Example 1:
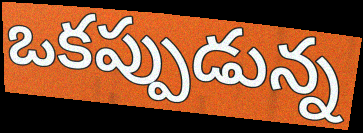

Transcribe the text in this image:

ఒకప్పుడున్న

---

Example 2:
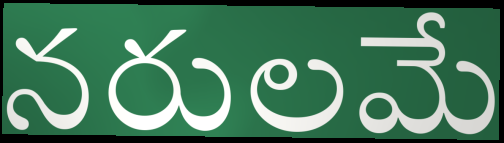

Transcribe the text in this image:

నరులమే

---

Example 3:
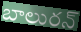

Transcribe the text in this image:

బాలురన్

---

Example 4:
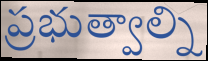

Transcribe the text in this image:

ప్రభుత్వాల్ని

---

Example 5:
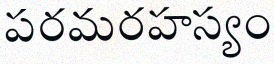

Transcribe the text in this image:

పరమరహస్యం